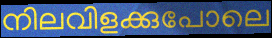
നിലവിളക്കുപോലെ